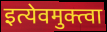
इत्येवमुक्त्वा